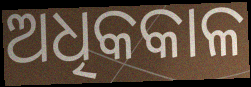
ଅଧିକକାଳ